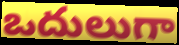
ఒదులుగా